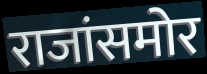
राजांसमोर